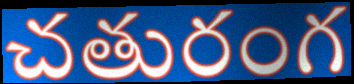
చతురంగ